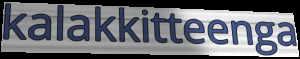
kalakkitteenga